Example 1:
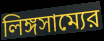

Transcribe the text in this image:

লিঙ্গসাম্যের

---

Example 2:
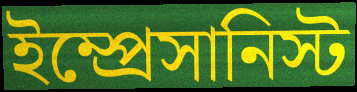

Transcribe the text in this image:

ইম্প্রেসানিস্ট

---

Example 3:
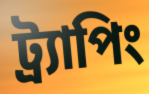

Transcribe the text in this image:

ট্র্যাপিং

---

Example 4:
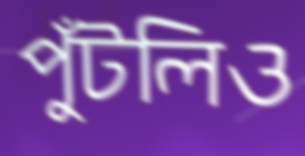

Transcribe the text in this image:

পুঁটলিও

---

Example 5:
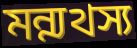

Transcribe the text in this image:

মন্মথস্য